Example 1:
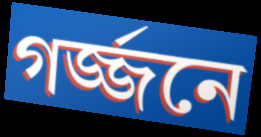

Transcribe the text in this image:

গর্জ্জনে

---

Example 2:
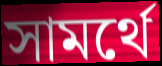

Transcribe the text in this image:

সামর্থে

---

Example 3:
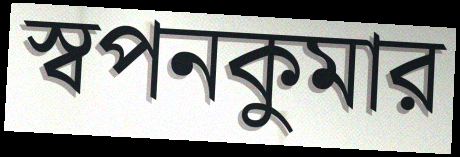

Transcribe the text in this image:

স্বপনকুমার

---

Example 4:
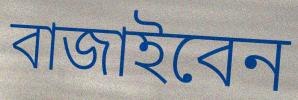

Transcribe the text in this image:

বাজাইবেন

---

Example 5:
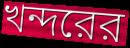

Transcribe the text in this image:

খন্দরের